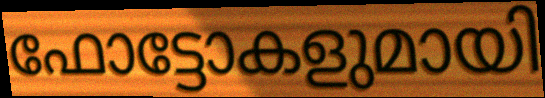
ഫോട്ടോകളുമായി